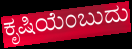
ಕೃಷಿಯೆಂಬುದು